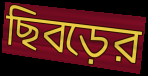
ছিবড়ের